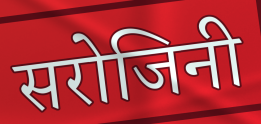
सरोजिनी